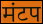
मंटप